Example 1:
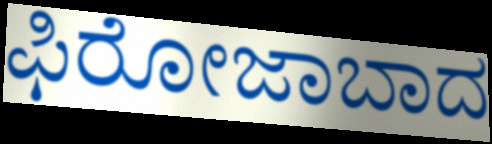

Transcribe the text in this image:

ಫಿರೋಜಾಬಾದ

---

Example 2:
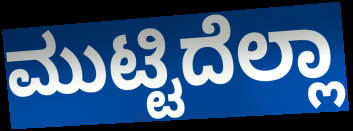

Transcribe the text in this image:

ಮುಟ್ಟಿದೆಲ್ಲಾ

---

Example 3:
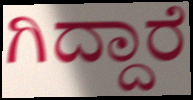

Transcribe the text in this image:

ಗಿದ್ದಾರೆ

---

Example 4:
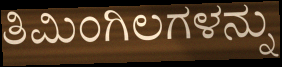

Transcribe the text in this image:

ತಿಮಿಂಗಿಲಗಳನ್ನು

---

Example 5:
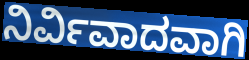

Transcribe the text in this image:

ನಿರ್ವಿವಾದವಾಗಿ